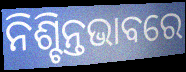
ନିଶ୍ଚିନ୍ତଭାବରେ